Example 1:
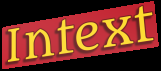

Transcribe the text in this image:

Intext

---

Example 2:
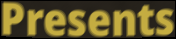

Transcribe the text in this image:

Presents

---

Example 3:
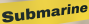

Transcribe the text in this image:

Submarine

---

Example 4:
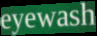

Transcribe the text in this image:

eyewash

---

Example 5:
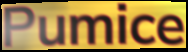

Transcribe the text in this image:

Pumice